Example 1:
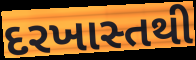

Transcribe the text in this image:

દરખાસ્તથી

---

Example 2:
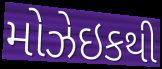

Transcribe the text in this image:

મોઝેઇકથી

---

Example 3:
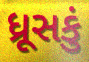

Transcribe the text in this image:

ધ્રૂસકું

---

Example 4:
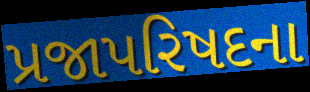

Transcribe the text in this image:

પ્રજાપરિષદના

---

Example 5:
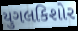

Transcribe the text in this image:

યુગલકિશોર